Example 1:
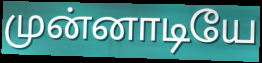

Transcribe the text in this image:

முன்னாடியே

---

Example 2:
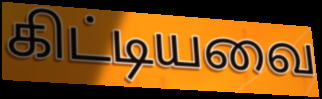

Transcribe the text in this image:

கிட்டியவை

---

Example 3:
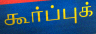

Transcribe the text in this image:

கூர்ப்புக்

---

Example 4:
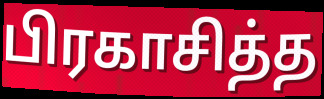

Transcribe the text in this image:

பிரகாசித்த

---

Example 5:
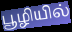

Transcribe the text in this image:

பூழியில்